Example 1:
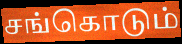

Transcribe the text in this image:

சங்கொடும்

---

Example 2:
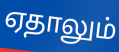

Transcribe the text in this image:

ஏதாலும்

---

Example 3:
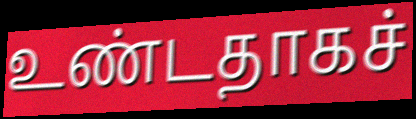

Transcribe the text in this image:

உண்டதாகச்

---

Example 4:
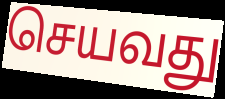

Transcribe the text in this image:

செயவது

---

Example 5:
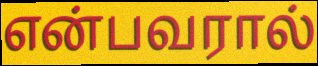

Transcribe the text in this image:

என்பவரால்